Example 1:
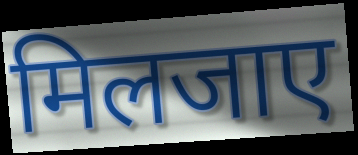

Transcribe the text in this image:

मिलजाए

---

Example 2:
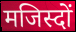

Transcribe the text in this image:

मजिस्दों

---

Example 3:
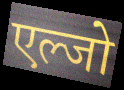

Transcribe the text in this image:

एल्जो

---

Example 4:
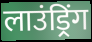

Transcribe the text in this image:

लाउंड्रिंग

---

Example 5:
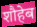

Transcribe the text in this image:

शौहेब